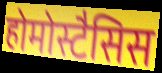
होमोस्टैसिस